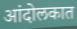
आंदोलकात